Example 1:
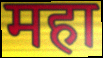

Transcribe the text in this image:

महा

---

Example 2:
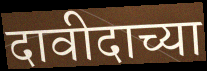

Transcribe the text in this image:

दावीदाच्या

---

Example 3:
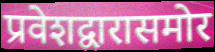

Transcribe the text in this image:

प्रवेशद्वारासमोर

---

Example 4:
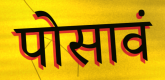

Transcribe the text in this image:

पोसावं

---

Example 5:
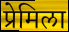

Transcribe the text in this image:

प्रेमिला